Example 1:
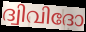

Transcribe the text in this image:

ദ്വിവിദോ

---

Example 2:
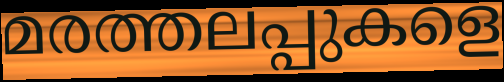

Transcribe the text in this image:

മരത്തലപ്പുകളെ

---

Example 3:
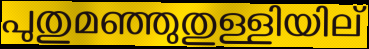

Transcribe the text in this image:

പുതുമഞ്ഞുതുള്ളിയില്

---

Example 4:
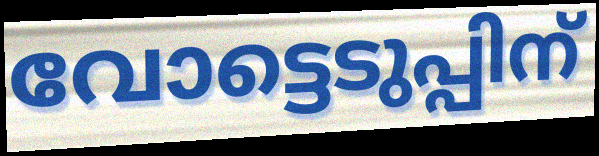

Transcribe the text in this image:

വോട്ടെടുപ്പിന്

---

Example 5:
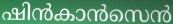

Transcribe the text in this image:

ഷിൻകാൻസെൻ